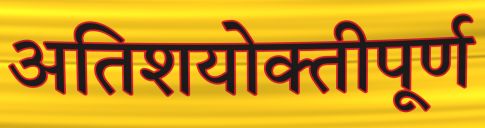
अतिशयोक्‍तीपूर्ण